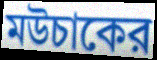
মউচাকের